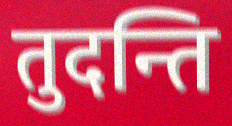
तुदन्ति